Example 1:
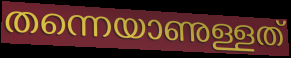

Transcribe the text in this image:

തന്നെയാണുള്ളത്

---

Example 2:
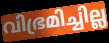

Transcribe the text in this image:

വിഭ്രമിച്ചില്ല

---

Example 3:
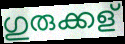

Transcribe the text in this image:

ഗുരുക്കള്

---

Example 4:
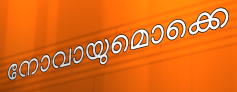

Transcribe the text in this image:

നോവായുമൊക്കെ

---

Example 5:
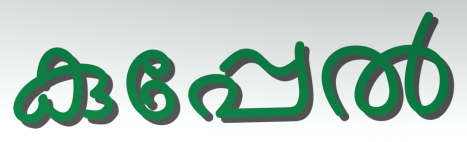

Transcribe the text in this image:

കുപ്പേൽ